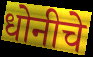
धोनीचे